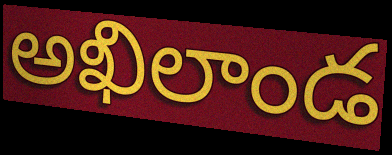
అఖిలాండ